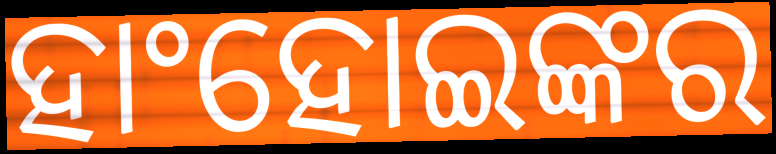
ହାଂହୋଇଙ୍କର